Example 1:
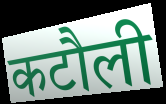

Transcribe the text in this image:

कटौली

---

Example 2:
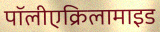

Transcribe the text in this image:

पॉलीएक्रिलामाइड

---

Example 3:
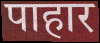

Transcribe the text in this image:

पाहार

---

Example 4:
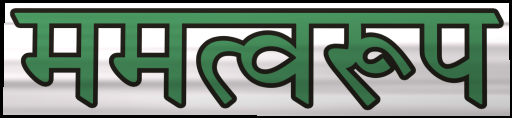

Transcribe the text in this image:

ममत्वरूप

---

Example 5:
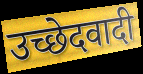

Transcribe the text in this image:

उच्छेदवादी